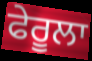
ਫੇਰੂਲਾ